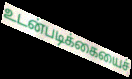
உடன்படிக்கையைச்